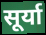
सूर्या